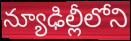
న్యూఢిల్లీలోని